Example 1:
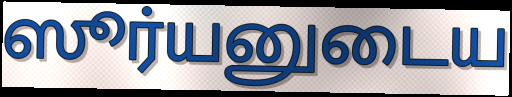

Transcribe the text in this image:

ஸூர்யனுடைய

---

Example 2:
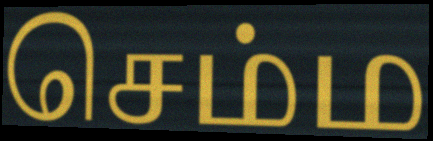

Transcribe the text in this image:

செம்ம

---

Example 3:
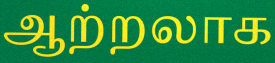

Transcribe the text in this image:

ஆற்றலாக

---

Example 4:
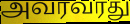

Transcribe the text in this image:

அவரவரது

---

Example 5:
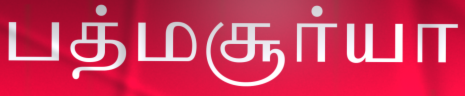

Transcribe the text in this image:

பத்மசூர்யா